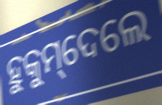
ହୁକୁମ୍‌ଦେଲେ